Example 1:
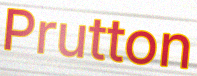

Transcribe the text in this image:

Prutton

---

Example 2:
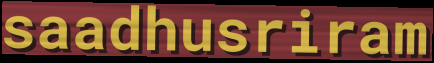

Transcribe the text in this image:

saadhusriram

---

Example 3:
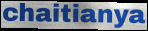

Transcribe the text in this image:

chaitianya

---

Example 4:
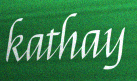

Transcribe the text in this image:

kathay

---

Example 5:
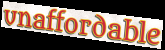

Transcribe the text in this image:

unaffordable